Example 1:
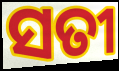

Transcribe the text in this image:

ସତୀ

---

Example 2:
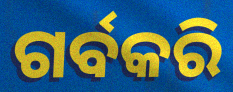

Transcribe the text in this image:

ଗର୍ବକରି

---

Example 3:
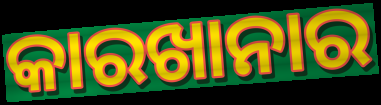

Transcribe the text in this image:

କାରଖାନାର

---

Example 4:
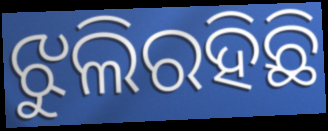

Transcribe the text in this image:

ଝୁଲିରହିଛି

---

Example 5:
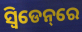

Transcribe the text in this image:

ସ୍ୱିଡେନ୍‌ରେ